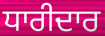
ਧਾਰੀਦਾਰ